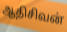
ஆதிசிவன்